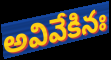
అవివేకినః